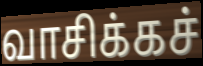
வாசிக்கச்